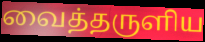
வைத்தருளிய